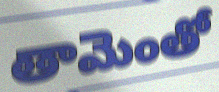
తామెంతో